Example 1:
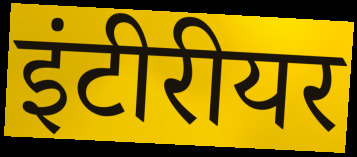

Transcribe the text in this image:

इंटीरीयर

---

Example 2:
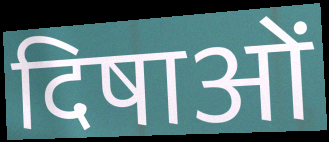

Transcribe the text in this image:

दिषाओं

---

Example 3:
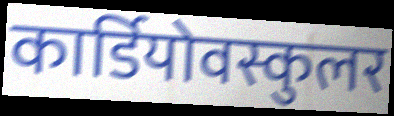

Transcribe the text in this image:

कार्डियोवस्कुलर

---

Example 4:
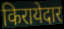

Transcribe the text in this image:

किरायेदार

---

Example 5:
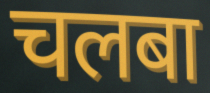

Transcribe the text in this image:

चलबा